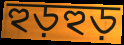
হুড়হুড়